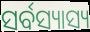
ସର୍ବସ୍ୟାସ୍ୟ